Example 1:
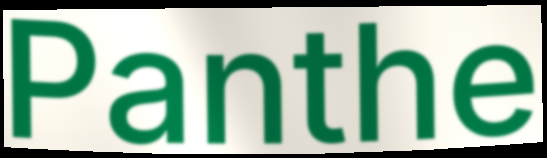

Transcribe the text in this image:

Panthe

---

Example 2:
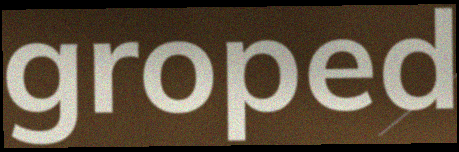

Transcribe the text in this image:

groped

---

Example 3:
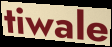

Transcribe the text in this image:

tiwale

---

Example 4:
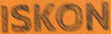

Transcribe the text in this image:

ISKON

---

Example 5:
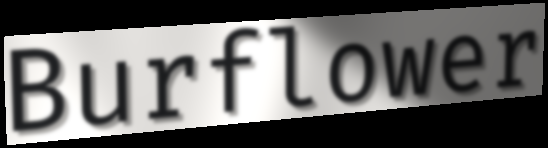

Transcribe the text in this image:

Burflower